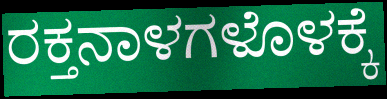
ರಕ್ತನಾಳಗಳೊಳಕ್ಕೆ